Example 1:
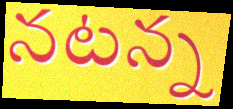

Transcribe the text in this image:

నటన్న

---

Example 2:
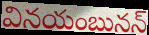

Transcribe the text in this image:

వినయంబునన్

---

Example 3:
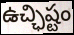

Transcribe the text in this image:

ఉచ్ఛిష్టం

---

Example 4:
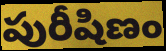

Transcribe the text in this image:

పురీషిణం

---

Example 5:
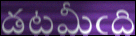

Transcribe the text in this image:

డటమీఁది